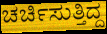
ಚರ್ಚಿಸುತ್ತಿದ್ದ